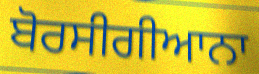
ਬੋਰਸੀਗੀਆਨਾ